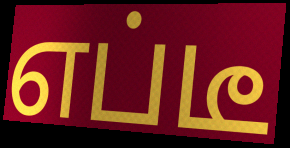
எப்டீ